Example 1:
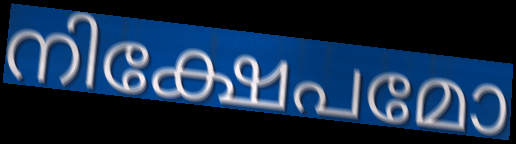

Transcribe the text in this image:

നിക്ഷേപമോ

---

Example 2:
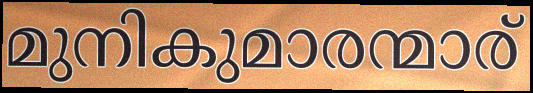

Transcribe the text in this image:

മുനികുമാരന്മാര്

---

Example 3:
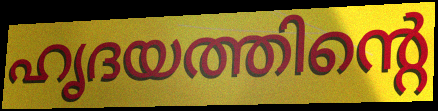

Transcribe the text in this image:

ഹൃദയത്തിന്റെ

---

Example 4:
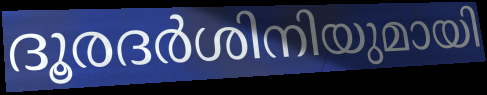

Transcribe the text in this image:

ദൂരദർശിനിയുമായി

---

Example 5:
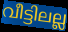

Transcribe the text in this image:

വീട്ടിലല്ല